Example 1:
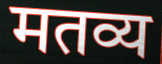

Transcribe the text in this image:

मतव्य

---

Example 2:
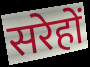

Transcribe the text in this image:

सरेहों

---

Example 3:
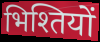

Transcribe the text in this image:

भिश्तियों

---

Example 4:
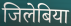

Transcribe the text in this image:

जिलेबिया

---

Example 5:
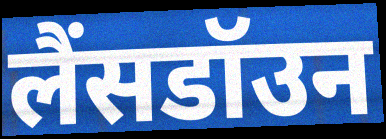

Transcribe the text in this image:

लैंसडॉउन